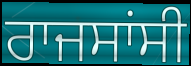
ਰਾਜਸਾਂਸੀ